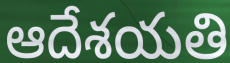
ఆదేశయతి